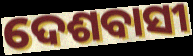
ଦେଶବାସୀ